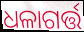
ଧଳାଗର୍ତ୍ତ